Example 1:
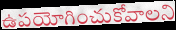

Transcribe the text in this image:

ఉపయోగించుకోవాలని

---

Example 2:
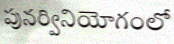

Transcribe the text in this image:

పునర్వినియోగంలో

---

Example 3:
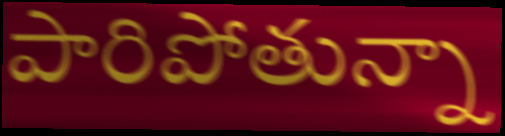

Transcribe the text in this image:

పారిపోతున్నా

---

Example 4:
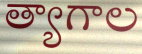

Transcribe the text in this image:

త్యాగాల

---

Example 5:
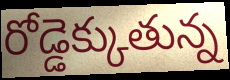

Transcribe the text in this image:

రోడ్డెక్కుతున్న